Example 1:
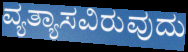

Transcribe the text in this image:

ವ್ಯತ್ಯಾಸವಿರುವುದು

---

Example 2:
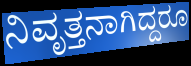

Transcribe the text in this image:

ನಿವೃತ್ತನಾಗಿದ್ದರೂ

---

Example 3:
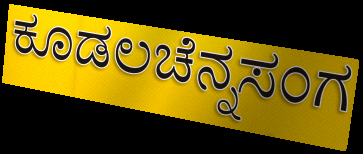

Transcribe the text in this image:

ಕೂಡಲಚೆನ್ನಸಂಗ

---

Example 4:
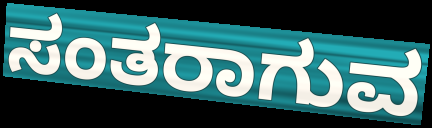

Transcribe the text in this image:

ಸಂತರಾಗುವ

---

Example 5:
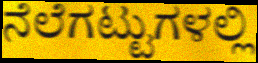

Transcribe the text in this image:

ನೆಲೆಗಟ್ಟುಗಳಲ್ಲಿ